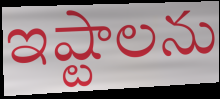
ఇష్టాలను